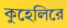
কুহেলিরে